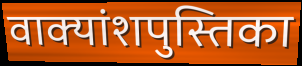
वाक्यांशपुस्तिका